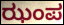
ಝಂಪ